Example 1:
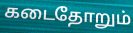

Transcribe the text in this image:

கடைதோறும்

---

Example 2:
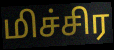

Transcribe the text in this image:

மிச்சிர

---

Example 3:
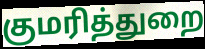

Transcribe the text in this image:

குமரித்துறை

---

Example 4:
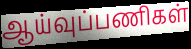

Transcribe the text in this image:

ஆய்வுப்பணிகள்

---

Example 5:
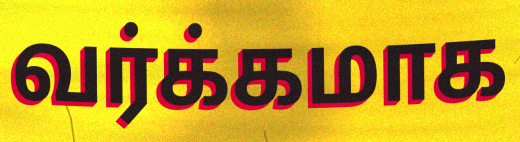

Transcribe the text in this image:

வர்க்கமாக